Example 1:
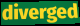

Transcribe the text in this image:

diverged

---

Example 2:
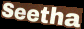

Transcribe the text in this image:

Seetha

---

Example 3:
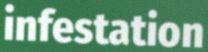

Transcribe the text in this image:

infestation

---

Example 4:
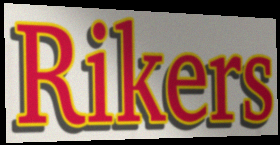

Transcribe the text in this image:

Rikers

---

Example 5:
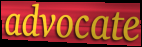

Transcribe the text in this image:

advocate